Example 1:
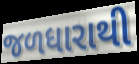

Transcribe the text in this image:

જળધારાથી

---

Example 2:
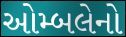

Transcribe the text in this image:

ઓમ્બલેનો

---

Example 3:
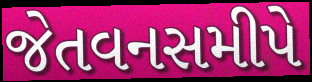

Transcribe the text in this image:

જેતવનસમીપે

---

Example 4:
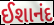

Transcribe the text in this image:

ઈશાનંદ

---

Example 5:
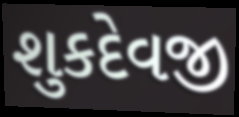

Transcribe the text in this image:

શુકદેવજી